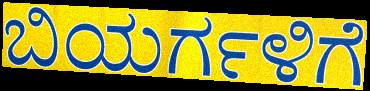
ಬಿಯರ್ಗಳಿಗೆ